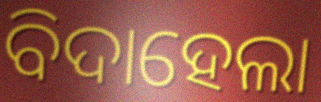
ବିଦାହେଲା